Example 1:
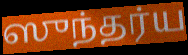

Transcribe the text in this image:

ஸுந்தர்ய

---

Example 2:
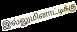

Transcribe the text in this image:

இல்லுமினாட்டிக்கு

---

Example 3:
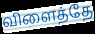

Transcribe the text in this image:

விளைத்தே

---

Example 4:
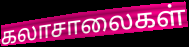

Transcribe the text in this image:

கலாசாலைகள்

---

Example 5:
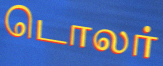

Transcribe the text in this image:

டொலர்